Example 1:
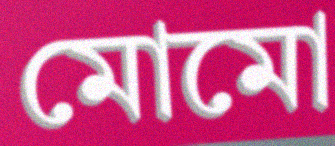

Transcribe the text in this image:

মোমো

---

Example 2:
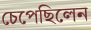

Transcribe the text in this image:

চেপেছিলেন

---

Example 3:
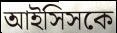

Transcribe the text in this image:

আইসিসকে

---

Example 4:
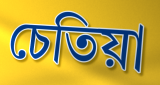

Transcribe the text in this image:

চেতিয়া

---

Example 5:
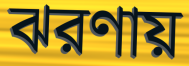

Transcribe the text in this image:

ঝরণায়